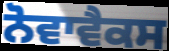
ਨੋਵਾਵੈਕਸ